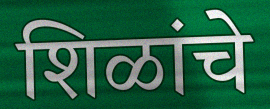
शिळांचे